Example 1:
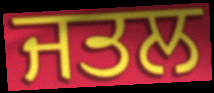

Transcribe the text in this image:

ਜਤਲ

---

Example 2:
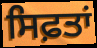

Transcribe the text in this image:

ਸਿਫ਼ਤਾਂ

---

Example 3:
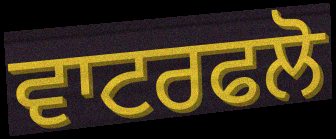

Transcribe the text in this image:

ਵਾਟਰਫਲੋ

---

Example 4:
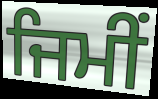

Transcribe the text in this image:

ਜਿਮੀਂ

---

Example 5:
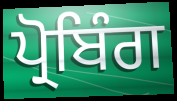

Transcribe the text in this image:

ਪ੍ਰੋਬਿੰਗ